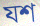
যশ